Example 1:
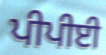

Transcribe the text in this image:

ਪੀਪੀਈ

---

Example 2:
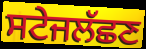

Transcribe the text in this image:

ਸਟੇਜਲੱਛਣ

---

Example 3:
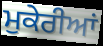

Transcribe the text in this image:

ਮੁਕੇਰੀਆਂ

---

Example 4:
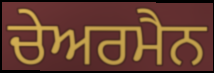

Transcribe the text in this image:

ਚੇਅਰਮੈਨ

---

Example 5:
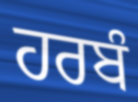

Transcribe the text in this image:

ਹਰਬੰ